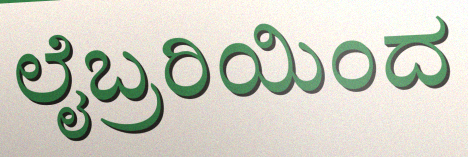
ಲೈಬ್ರರಿಯಿಂದ